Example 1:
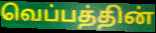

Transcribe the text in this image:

வெப்பத்தின்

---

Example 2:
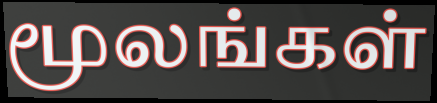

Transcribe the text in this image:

மூலங்கள்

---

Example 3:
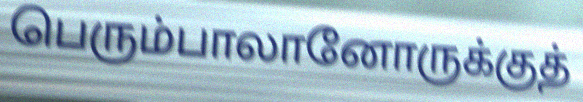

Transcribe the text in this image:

பெரும்பாலானோருக்குத்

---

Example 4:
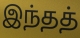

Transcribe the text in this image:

இந்தத்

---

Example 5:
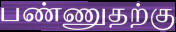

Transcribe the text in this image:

பண்ணுதற்கு